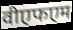
वीएफएम